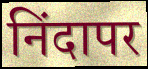
निंदापर